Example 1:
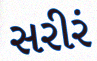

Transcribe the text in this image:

સરીરં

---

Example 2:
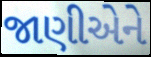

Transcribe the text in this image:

જાણીએને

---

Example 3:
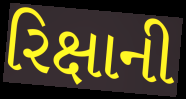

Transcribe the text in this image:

રિક્ષાની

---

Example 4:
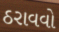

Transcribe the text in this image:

ઠરાવવો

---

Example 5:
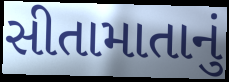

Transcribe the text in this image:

સીતામાતાનું